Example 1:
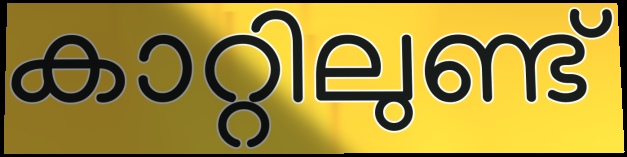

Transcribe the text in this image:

കാറ്റിലുണ്ട്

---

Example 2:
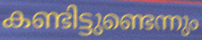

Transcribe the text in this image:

കണ്ടിട്ടുണ്ടെന്നും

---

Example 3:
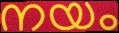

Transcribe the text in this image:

നയം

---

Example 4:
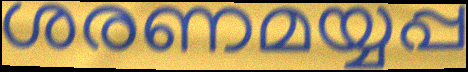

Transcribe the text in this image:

ശരണമയ്യപ്പ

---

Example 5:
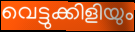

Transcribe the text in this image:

വെട്ടുക്കിളിയും